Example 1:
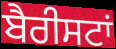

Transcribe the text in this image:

ਬੈਰੀਸਟਾਂ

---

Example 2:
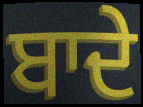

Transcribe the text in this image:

ਬਾਦੇ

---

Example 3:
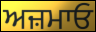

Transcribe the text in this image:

ਅਜ਼ਮਾਓ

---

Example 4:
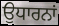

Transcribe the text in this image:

ਉਧਾਰਨਾਂ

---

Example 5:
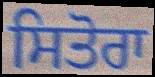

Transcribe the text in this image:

ਸਿਤੋਰਾ